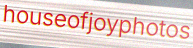
houseofjoyphotos